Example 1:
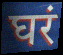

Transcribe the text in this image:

घरं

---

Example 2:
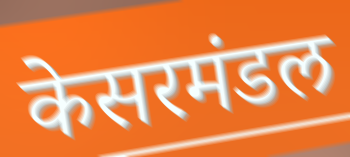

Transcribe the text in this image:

केसरमंडल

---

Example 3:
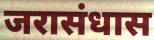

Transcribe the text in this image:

जरासंधास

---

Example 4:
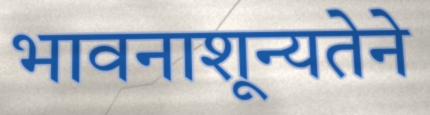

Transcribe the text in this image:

भावनाशून्यतेने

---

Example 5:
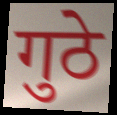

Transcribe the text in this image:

गुठे